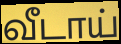
வீடாய்